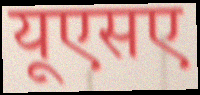
यूएसए